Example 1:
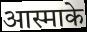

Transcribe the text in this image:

आस्माके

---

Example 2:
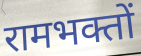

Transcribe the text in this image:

रामभक्तों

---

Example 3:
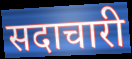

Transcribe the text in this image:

सदाचारी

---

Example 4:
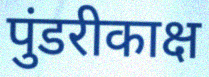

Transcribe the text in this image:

पुंडरीकाक्ष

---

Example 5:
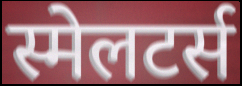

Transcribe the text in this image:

स्मेलटर्स